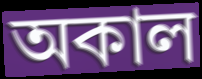
অকাল